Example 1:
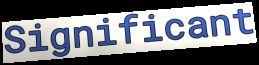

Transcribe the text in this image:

Significant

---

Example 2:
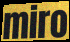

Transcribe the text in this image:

miro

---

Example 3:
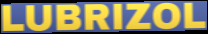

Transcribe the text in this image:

LUBRIZOL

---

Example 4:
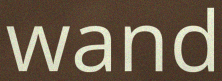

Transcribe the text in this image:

wand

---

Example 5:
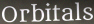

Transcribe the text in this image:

Orbitals